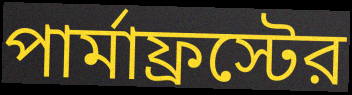
পার্মাফ্রস্টের